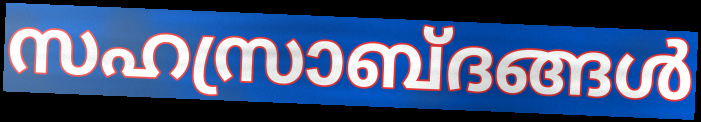
സഹസ്രാബ്ദങ്ങൾ